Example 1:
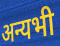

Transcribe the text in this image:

अन्यभी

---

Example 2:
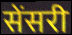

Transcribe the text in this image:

सेंसरी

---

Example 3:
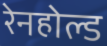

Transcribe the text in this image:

रेनहोल्ड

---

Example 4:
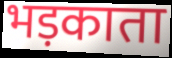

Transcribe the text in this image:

भड़काता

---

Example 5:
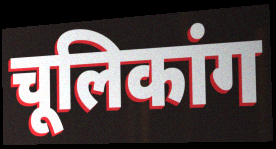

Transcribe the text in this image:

चूलिकांग